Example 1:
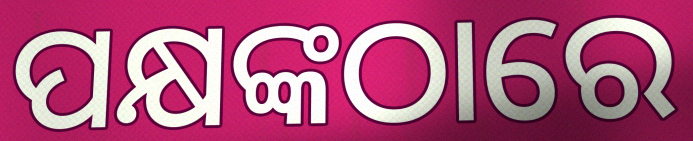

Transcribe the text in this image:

ପକ୍ଷଙ୍କଠାରେ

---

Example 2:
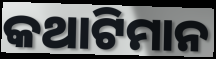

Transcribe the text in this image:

କଥାଟିମାନ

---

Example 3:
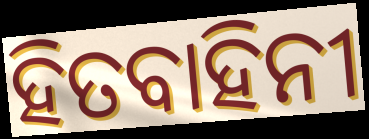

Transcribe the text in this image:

ହିତବାହିନୀ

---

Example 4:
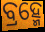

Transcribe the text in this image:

ବ୍ରହ୍ମେ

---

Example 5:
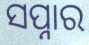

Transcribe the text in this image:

ସପ୍ନାର